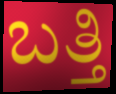
ಬತ್ತಿ